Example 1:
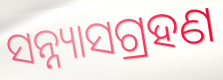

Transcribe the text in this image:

ସନ୍ନ୍ୟାସଗ୍ରହଣ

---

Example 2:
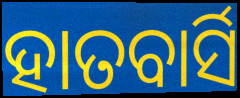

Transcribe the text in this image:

ହାତବାର୍ସି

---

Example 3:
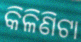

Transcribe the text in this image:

କିଳିଣିଟା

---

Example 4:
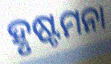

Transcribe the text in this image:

ହୃଷ୍ଟମନା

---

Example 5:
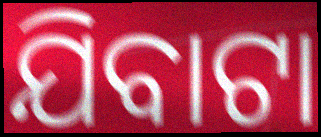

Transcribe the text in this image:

ଯିବାଟା